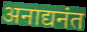
अनाद्यनंत